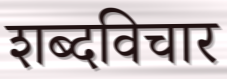
शब्दविचार